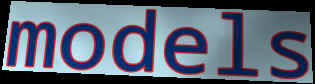
models